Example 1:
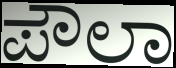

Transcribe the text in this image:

ಪೌಲಾ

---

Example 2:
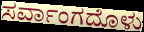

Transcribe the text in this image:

ಸರ್ವಾಂಗದೊಳು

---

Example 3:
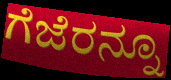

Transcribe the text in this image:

ಗೆಜೆರನ್ನೂ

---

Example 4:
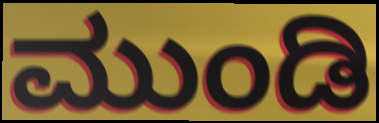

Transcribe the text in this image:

ಮುಂಡಿ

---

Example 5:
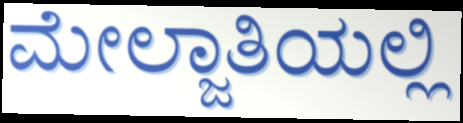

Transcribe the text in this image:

ಮೇಲ್ಜಾತಿಯಲ್ಲಿ